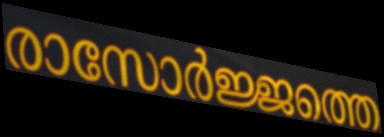
രാസോർജ്ജത്തെ